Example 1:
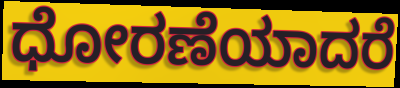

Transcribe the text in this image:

ಧೋರಣೆಯಾದರೆ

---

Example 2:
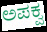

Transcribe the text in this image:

ಅಪಕ್ವ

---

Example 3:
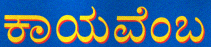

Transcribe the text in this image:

ಕಾಯವೆಂಬ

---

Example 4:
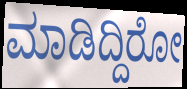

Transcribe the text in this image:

ಮಾಡಿದ್ದಿರೋ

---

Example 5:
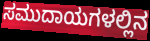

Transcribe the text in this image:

ಸಮುದಾಯಗಳಲ್ಲಿನ